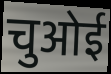
चुओई